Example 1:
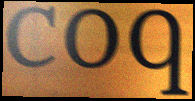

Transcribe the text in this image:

coq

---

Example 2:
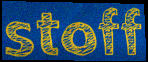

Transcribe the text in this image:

stoff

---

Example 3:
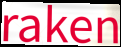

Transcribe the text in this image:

raken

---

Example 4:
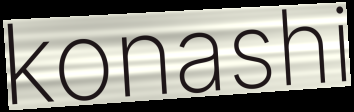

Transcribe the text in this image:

konashi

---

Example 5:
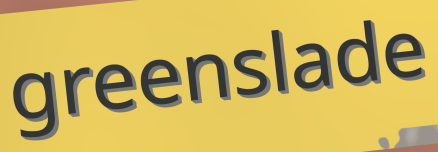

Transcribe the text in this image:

greenslade